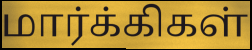
மார்க்கிகள்